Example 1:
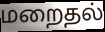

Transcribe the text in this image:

மறைதல்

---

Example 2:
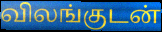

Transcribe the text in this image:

விலங்குடன்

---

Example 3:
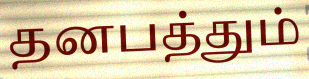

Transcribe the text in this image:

தனபத்தும்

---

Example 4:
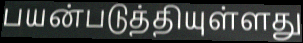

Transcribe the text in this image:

பயன்படுத்தியுள்ளது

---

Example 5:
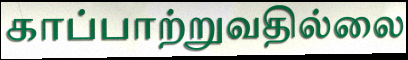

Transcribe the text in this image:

காப்பாற்றுவதில்லை